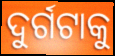
ଦୁର୍ଗଟାକୁ